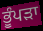
ਭੂੰਪੜਾ